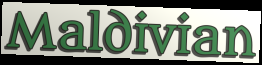
Maldivian